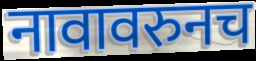
नावावरुनच